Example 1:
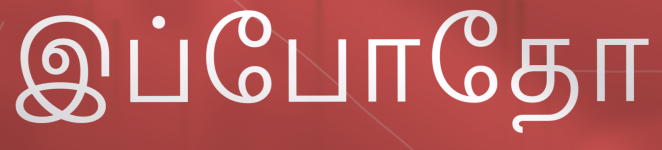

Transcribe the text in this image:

இப்போதோ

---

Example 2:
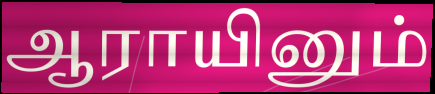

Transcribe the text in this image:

ஆராயினும்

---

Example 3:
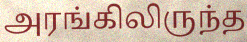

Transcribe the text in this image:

அரங்கிலிருந்த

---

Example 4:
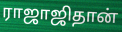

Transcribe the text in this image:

ராஜாஜிதான்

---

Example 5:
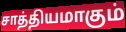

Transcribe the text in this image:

சாத்தியமாகும்